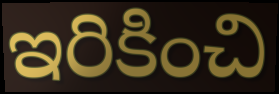
ఇరికించి